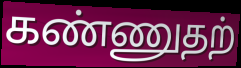
கண்ணுதற்